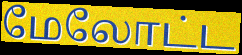
மேலோட்ட